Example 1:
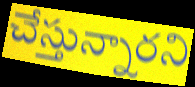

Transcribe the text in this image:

చేస్తున్నారని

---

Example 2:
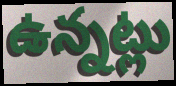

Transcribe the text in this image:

ఉన్నట్లు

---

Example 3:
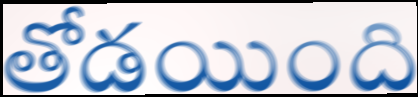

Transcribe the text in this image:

తోడయింది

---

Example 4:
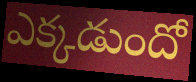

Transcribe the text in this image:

ఎక్కడుందో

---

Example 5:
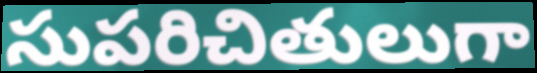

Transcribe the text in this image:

సుపరిచితులుగా